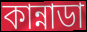
কান্নাডা